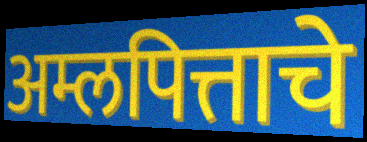
अम्लपित्ताचे